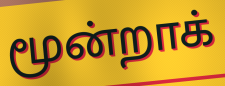
மூன்றாக்